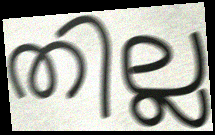
തില്ല